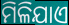
ମିଳିଯାଏ